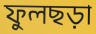
ফুলছড়া